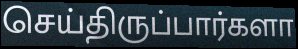
செய்திருப்பார்களா